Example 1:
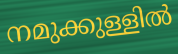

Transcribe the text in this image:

നമുക്കുള്ളിൽ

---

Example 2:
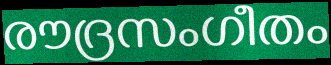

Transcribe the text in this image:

രൗദ്രസംഗീതം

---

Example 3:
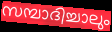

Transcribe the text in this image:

സമ്പാദിച്ചാലും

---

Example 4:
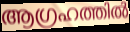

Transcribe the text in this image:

ആഗ്രഹത്തിൽ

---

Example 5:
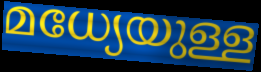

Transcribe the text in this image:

മധ്യേയുള്ള